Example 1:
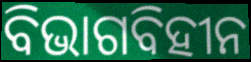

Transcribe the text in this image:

ବିଭାଗବିହୀନ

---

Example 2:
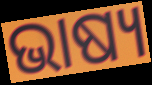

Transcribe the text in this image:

ଭାଷ୍ୟ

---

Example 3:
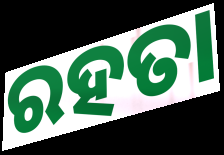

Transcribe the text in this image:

ରହତା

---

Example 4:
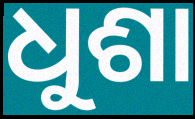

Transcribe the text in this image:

ଧୁଶା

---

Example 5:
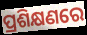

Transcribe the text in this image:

ପ୍ରଶିକ୍ଷଣରେ